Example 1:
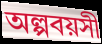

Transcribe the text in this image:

অল্পবয়সী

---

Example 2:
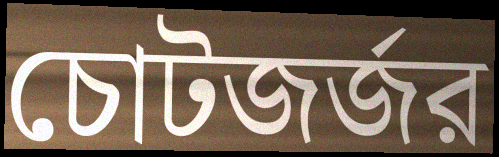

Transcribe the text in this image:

চোটজর্জর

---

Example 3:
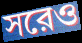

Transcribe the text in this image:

সরেও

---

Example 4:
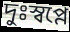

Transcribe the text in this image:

দুঃস্বপ্নে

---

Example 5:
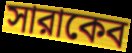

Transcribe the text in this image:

সারাকেব